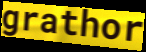
grathor